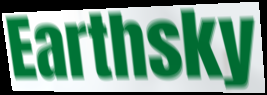
Earthsky